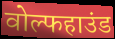
वोल्फहाउंड